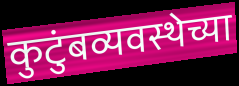
कुटुंबव्यवस्थेच्या